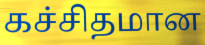
கச்சிதமான